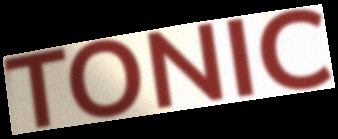
TONIC